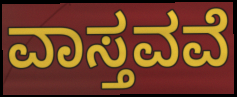
ವಾಸ್ತವವೆ